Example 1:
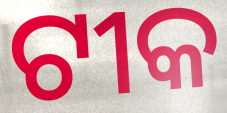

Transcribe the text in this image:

ଟୀକ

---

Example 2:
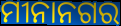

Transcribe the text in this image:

ମୀନାନଗର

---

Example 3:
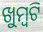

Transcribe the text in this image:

ଖୁମ୍ବଟି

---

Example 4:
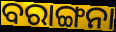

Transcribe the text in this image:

ବରାଙ୍ଗନା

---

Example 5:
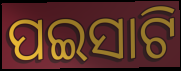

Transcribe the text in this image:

ପଇସାଟି